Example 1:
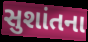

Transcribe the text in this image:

સુશાંતના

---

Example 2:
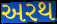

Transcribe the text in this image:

અરથ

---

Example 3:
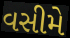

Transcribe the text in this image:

વસીમે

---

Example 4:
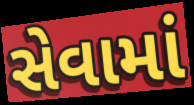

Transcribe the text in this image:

સેવામાં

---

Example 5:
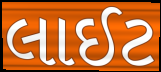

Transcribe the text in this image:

લાઈટ